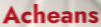
Acheans